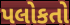
પલોકતો